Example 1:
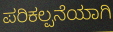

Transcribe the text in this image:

ಪರಿಕಲ್ಪನೆಯಾಗಿ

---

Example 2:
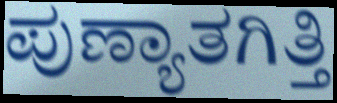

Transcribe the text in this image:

ಪುಣ್ಯಾತಗಿತ್ತಿ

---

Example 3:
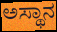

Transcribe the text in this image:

ಅಸ್ಥಾನ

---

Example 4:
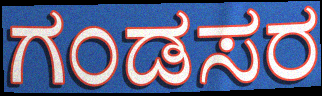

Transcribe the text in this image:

ಗಂಡಸರ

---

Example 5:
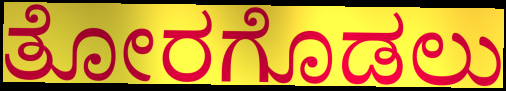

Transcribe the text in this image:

ತೋರಗೊಡಲು